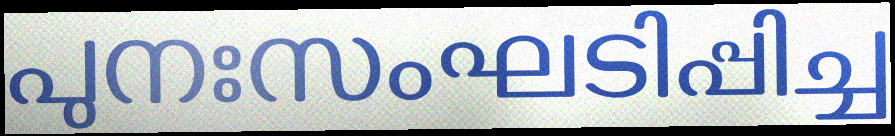
പുനഃസംഘടിപ്പിച്ച